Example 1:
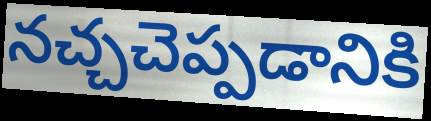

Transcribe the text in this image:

నచ్చచెప్పడానికి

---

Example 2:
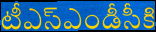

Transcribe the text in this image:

టీఎస్ఎండీసీకి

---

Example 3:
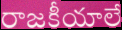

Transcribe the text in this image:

రాజకీయాలే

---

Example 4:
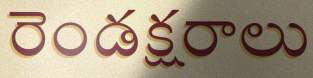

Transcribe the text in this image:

రెండక్షరాలు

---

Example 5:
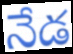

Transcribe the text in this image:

నేడ